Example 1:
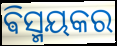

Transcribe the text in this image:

ଵିସ୍ମୟକର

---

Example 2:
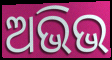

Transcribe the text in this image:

ଅଭିଭ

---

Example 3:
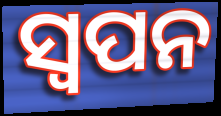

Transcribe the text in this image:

ସ୍ବପନ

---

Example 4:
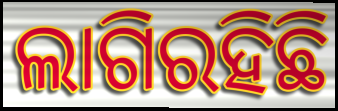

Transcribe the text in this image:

ଲାଗିରହିଛି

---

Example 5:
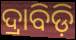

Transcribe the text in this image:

ଦ୍ରାବିଡ଼ି